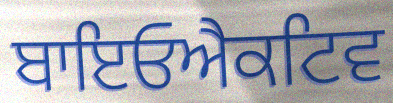
ਬਾਇਓਐਕਟਿਵ